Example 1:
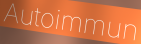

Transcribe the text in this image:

Autoimmun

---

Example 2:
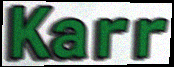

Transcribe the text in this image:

Karr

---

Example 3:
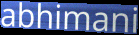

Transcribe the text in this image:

abhimani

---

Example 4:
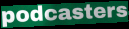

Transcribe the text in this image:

podcasters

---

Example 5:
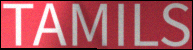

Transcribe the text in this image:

TAMILS